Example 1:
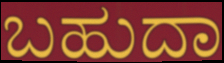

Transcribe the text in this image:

ಬಹುದಾ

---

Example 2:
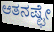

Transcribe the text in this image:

ಆತನಷ್ಟೇ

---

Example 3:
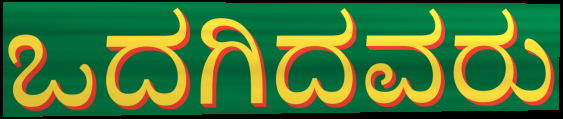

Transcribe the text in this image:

ಒದಗಿದವರು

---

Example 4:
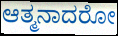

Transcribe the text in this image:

ಆತ್ಮನಾದರೋ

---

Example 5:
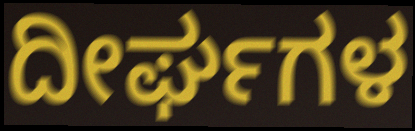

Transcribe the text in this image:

ದೀರ್ಘಗಳ